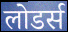
लोडर्स